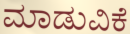
ಮಾಡುವಿಕೆ